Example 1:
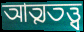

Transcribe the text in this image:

আত্মতত্ত্ব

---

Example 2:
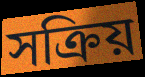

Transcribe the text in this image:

সক্রিয়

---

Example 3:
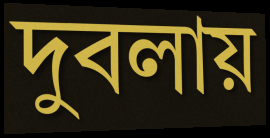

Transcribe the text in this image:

দুবলায়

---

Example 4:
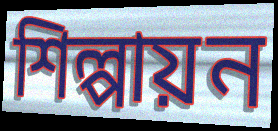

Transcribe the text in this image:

শিল্পায়ন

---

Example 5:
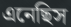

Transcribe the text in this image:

এনেছিস